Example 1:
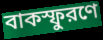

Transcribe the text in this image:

বাকস্ফুরণে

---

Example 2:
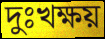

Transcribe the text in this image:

দুঃখক্ষয়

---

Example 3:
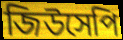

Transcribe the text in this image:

জিউসেপি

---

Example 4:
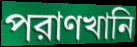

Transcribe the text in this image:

পরাণখানি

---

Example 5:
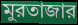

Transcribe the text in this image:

মুরতাজার